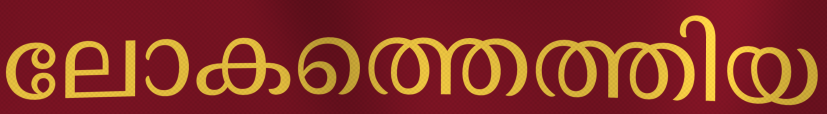
ലോകത്തെത്തിയ